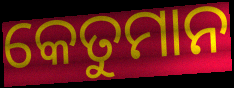
କେତୁମାନ